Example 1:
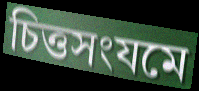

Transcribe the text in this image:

চিত্তসংযমে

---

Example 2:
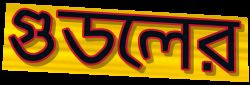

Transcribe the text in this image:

গুডলের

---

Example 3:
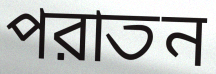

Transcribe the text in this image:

পরাতন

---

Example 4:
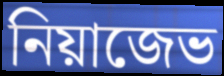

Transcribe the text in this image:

নিয়াজেভ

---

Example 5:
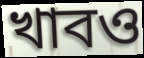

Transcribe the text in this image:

খাবও